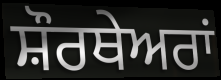
ਸ਼ੌਰਥੇਅਰਾਂ